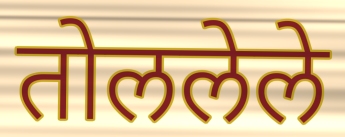
तोललेले